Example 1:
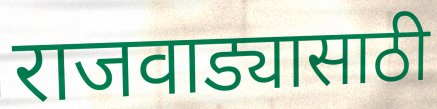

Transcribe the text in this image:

राजवाड्यासाठी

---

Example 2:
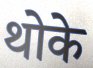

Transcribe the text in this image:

थोके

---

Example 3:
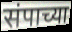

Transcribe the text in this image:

संपाच्या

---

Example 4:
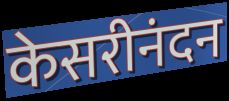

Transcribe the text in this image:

केसरीनंदन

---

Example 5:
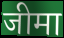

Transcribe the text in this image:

जीमा